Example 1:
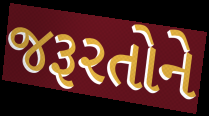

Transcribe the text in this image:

જરૂરતોને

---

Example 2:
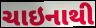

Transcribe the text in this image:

ચાઇનાથી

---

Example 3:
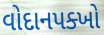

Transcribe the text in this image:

વોદાનપક્ખો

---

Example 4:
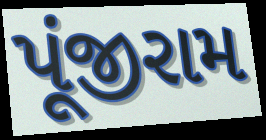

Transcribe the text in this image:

પૂંજીરામ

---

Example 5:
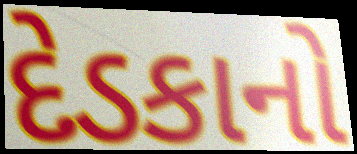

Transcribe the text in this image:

દેડકાનો